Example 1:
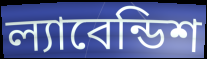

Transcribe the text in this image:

ল্যাবেন্ডিশ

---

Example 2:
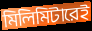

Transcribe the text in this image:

মিলিমিটারেই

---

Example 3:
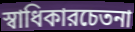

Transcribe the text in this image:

স্বাধিকারচেতনা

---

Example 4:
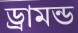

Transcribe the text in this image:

ড্রামন্ড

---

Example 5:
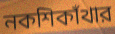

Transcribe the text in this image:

নকশিকাঁথার